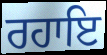
ਰਹਾਇ